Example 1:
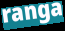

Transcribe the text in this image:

ranga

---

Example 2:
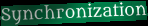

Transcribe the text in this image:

Synchronization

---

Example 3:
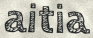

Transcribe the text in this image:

aitia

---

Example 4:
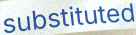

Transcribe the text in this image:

substituted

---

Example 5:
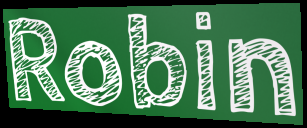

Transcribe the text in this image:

Robin